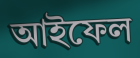
আইফেল